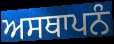
ਅਸਥਾਪਨੰ